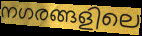
നഗരങ്ങളിലെ